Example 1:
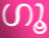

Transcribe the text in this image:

ഗൂ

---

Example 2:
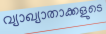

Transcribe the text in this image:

വ്യാഖ്യാതാക്കളുടെ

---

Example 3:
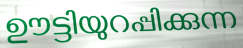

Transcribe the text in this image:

ഊട്ടിയുറപ്പിക്കുന്ന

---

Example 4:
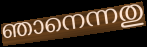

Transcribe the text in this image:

ഞാനെന്നതു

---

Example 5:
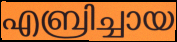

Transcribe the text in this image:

എബ്രിച്ചായ